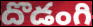
దొడంగి